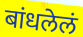
बांधलेलं